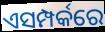
ଏସମ୍ପର୍କରେ